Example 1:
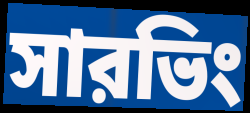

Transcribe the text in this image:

সারভিং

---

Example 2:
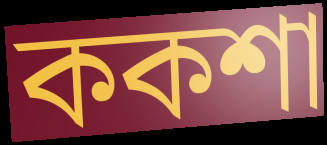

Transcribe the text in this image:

ককশা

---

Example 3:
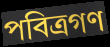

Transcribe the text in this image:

পবিত্রগণ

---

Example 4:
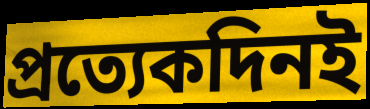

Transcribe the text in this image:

প্রত্যেকদিনই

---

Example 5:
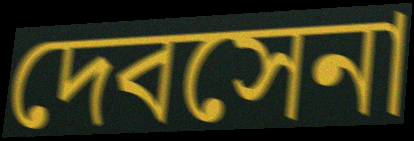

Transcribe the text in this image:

দেবসেনা